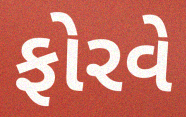
ફોરવે